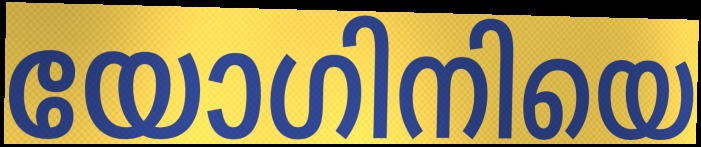
യോഗിനിയെ